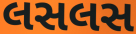
લસલસ